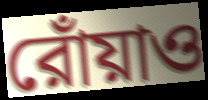
রোঁয়াও